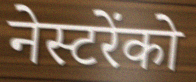
नेस्टरेंको